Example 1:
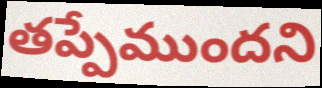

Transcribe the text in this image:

తప్పేముందని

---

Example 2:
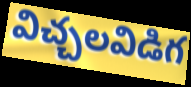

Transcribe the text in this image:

విచ్చలవిడిగ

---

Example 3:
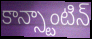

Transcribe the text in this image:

కాన్స్టాంటిన్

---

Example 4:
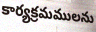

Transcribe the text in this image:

కార్యక్రమములను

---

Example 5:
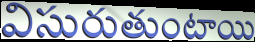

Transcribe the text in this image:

విసురుతుంటాయి